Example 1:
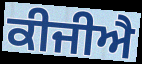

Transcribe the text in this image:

ਕੀਜੀਐ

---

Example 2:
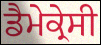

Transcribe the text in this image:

ਡੈਮੇਕ੍ਰੇਸੀ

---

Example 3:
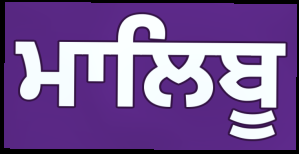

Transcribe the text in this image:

ਮਾਲਿਬੂ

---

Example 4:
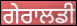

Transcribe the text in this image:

ਗੇਰਾਲਡੀ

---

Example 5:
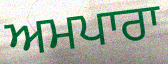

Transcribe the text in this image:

ਅਮਪਾਰਾ